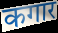
कगार